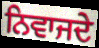
ਨਿਵਾਜਦੇ